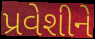
પ્રવેશીને